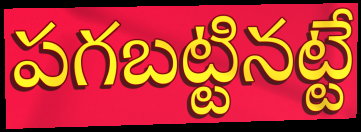
పగబట్టినట్టే